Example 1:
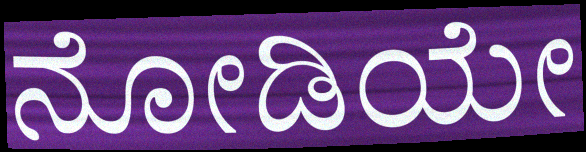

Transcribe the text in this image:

ನೋಡಿಯೇ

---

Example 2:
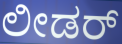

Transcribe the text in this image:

ಲೀಡರ್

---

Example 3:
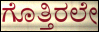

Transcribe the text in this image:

ಗೊತ್ತಿರಲೇ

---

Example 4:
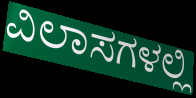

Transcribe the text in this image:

ವಿಲಾಸಗಳಲ್ಲಿ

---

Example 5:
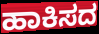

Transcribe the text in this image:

ಹಾಕಿಸದ